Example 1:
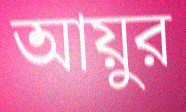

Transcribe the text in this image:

আয়ুর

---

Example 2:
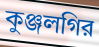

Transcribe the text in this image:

কুঞ্জলগির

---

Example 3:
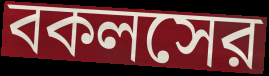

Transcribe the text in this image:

বকলসের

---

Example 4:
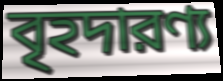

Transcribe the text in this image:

বৃহদারণ্য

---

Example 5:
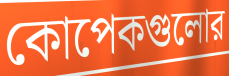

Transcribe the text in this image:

কোপেকগুলোর